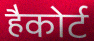
हैकोर्ट